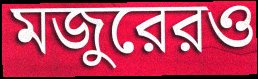
মজুরেরও